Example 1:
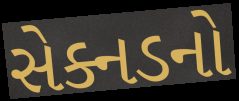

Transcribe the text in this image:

સેક્નડનો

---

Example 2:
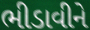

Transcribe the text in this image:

ભીડાવીને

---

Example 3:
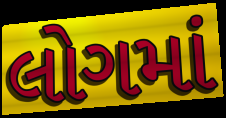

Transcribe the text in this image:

લોગમાં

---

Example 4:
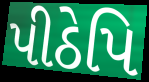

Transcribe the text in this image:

પીઠેપિ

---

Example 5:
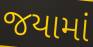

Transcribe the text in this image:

જયામાં